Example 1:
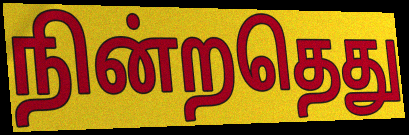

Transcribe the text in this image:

நின்றதெது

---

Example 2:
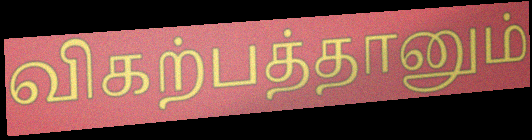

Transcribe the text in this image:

விகற்பத்தானும்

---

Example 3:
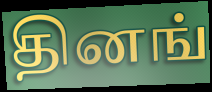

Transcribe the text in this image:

தினங்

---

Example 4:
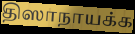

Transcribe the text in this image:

திஸாநாயக்க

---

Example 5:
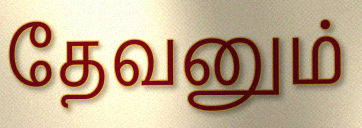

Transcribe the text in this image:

தேவனும்